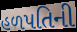
હળપતિની